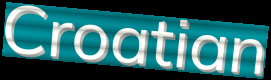
Croatian